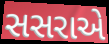
સસરાએ